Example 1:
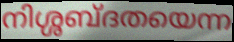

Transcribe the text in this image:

നിശ്ശബ്ദതയെന്ന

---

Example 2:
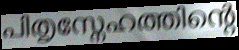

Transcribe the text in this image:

പിതൃസ്നേഹത്തിന്റെ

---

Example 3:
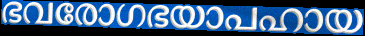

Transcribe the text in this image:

ഭവരോഗഭയാപഹായ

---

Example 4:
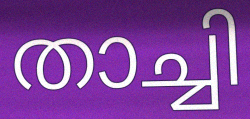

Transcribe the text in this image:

താച്ചി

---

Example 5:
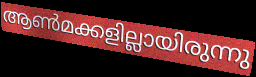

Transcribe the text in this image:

ആൺമക്കളില്ലായിരുന്നു